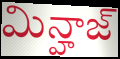
మిన్హాజ్